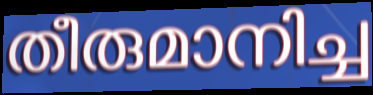
തീരുമാനിച്ച